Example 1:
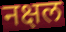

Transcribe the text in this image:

नक्षल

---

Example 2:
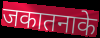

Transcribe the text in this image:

जकातनाके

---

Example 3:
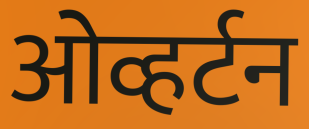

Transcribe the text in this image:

ओव्हर्टन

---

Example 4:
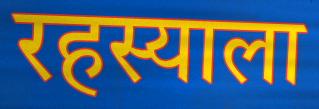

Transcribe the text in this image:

रहस्याला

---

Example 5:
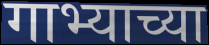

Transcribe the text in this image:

गाभ्याच्या